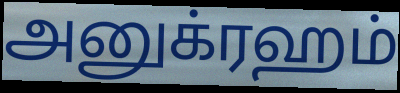
அனுக்ரஹம்